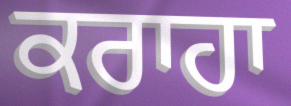
ਕਰਾਹਾ